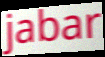
jabar